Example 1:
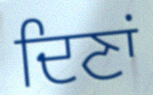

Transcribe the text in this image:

ਦਿਣਾਂ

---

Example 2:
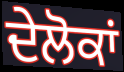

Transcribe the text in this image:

ਦੇਲੋਕਾਂ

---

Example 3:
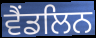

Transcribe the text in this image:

ਵੈਂਡਲਿਨ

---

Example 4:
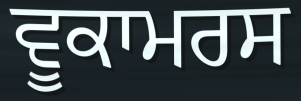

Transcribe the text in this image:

ਵੂਕਾਮਰਸ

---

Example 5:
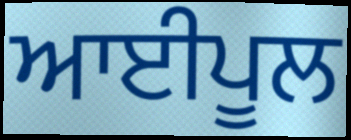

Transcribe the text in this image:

ਆਈਪੂਲ